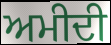
ਅਮੀਦੀ